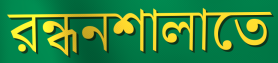
রন্ধনশালাতে